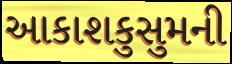
આકાશકુસુમની